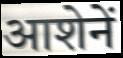
आशेनें